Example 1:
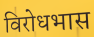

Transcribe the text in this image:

विरोधभास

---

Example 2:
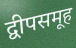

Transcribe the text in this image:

द्वीपसमूह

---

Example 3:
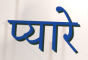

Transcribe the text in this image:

प्यारे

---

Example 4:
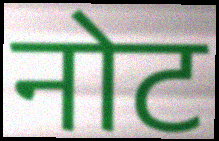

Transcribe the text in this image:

नोट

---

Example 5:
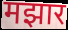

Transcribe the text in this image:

मझार